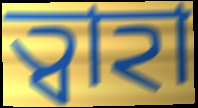
ত্বাহা